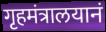
गृहमंत्रालयानं